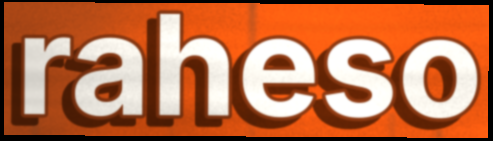
raheso